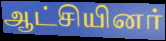
ஆட்சியினர்